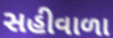
સહીવાળા